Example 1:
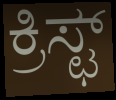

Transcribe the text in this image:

ಕ್ರಿಸ್ಟ್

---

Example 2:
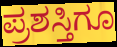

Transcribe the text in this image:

ಪ್ರಶಸ್ತಿಗೂ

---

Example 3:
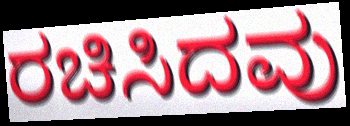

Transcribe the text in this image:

ರಚಿಸಿದವು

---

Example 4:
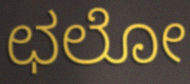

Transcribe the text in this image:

ಛಲೋ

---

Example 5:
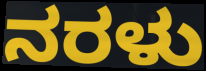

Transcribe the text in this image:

ನರಳು